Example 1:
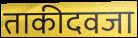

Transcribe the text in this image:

ताकीदवजा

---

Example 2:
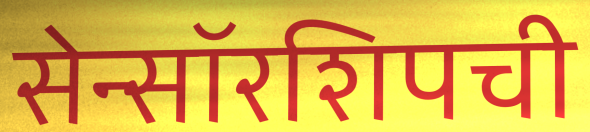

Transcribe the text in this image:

सेन्सॉरशिपची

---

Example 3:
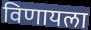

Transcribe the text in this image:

विणायला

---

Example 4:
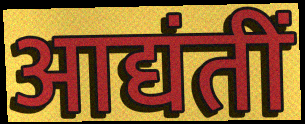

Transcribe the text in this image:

आद्यंतीं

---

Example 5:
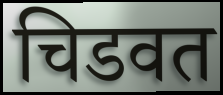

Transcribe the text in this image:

चिडवत